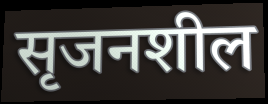
सृजनशील